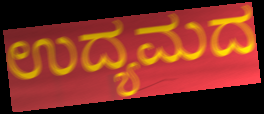
ಉದ್ಯಮದ